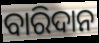
ବାରିଦାନ